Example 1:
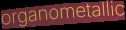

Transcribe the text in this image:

organometallic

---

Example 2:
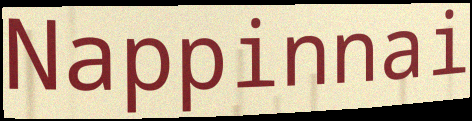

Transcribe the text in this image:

Nappinnai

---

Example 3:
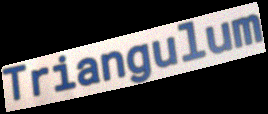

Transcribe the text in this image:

Triangulum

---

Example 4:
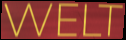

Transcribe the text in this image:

WELT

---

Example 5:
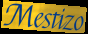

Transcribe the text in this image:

Mestizo